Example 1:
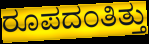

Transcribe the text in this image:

ರೂಪದಂತಿತ್ತು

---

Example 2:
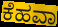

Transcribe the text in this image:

ಕೆಹವಾ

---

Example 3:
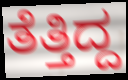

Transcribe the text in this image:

ತೆತ್ತಿದ್ದ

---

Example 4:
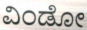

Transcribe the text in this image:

ವಿಂಡೋ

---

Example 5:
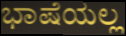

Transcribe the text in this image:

ಭಾಷೆಯಲ್ಲ